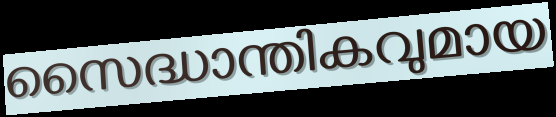
സൈദ്ധാന്തികവുമായ